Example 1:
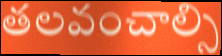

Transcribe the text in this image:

తలవంచాల్సి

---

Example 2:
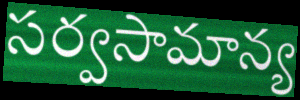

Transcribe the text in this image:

సర్వసామాన్య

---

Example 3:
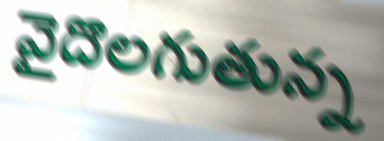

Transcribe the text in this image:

వైదొలగుతున్న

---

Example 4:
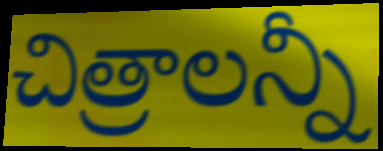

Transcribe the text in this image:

చిత్రాలన్నీ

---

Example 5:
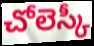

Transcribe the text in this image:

చోలెస్కీ